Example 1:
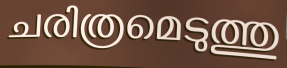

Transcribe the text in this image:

ചരിത്രമെടുത്തു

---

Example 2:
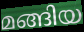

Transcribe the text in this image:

മങ്ങിയ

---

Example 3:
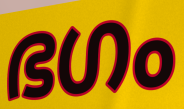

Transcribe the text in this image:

ഭഗം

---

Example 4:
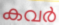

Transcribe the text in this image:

കവർ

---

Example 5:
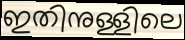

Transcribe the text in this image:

ഇതിനുള്ളിലെ